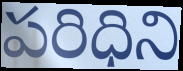
పరిధిని